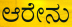
ಆರೇನು